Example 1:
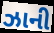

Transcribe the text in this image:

ઝાની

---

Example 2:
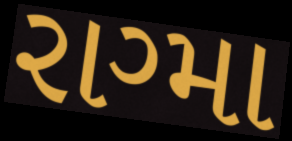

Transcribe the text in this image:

રાગ્મા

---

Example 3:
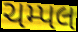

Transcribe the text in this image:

ચમ્પલ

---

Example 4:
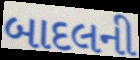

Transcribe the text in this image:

બાદલની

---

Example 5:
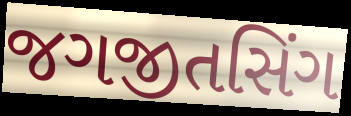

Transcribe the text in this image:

જગજીતસિંગ